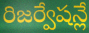
రిజర్వేషన్లే